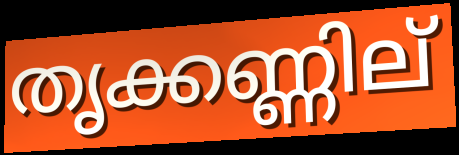
തൃക്കണ്ണില്